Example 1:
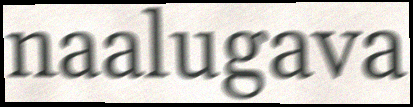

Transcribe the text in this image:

naalugava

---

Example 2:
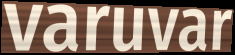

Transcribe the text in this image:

varuvar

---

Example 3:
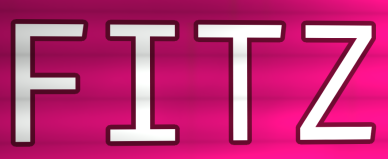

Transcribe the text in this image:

FITZ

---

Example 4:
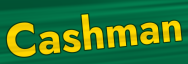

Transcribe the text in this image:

Cashman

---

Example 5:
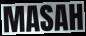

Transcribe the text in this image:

MASAH